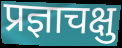
प्रज्ञाचक्षु